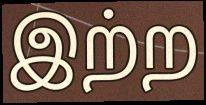
இற்ற